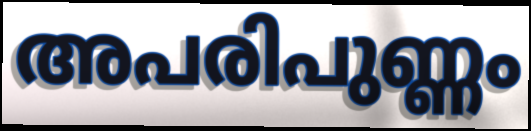
അപരിപുണ്ണം